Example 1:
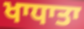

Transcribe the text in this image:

ਖਾਧਾਤਾ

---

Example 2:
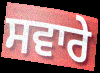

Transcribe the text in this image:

ਸਵਾਰੇ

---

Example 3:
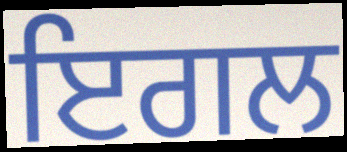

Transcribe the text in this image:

ਇਗਲ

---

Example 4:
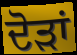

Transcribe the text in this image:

ਦੋੜਾਂ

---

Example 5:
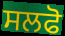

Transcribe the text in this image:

ਸਲਫੋ